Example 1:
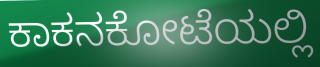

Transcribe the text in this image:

ಕಾಕನಕೋಟೆಯಲ್ಲಿ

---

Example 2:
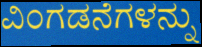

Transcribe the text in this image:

ವಿಂಗಡನೆಗಳನ್ನು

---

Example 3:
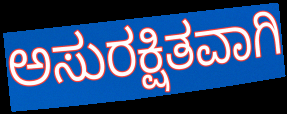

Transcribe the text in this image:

ಅಸುರಕ್ಷಿತವಾಗಿ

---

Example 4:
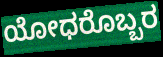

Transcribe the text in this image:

ಯೋಧರೊಬ್ಬರ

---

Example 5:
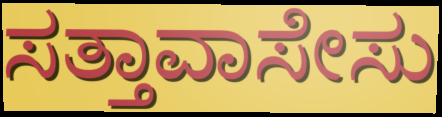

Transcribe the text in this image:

ಸತ್ತಾವಾಸೇಸು